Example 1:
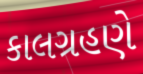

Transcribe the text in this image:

કાલગ્રહણે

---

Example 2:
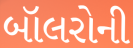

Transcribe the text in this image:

બૉલરોની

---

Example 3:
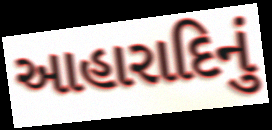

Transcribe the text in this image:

આહારાદિનું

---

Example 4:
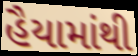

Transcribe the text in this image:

હૈયામાંથી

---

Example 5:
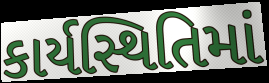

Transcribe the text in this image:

કાર્યસ્થિતિમાં